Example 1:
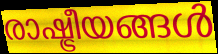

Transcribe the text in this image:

രാഷ്ട്രീയങ്ങൾ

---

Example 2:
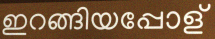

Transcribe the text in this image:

ഇറങ്ങിയപ്പോള്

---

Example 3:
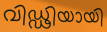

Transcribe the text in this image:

വിഡ്ഢിയായി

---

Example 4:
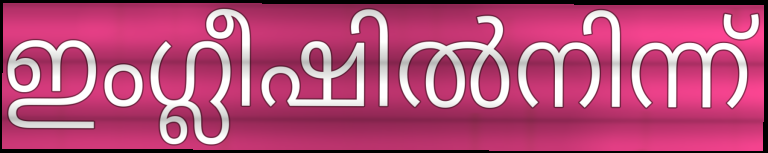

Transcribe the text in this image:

ഇംഗ്ലീഷിൽനിന്ന്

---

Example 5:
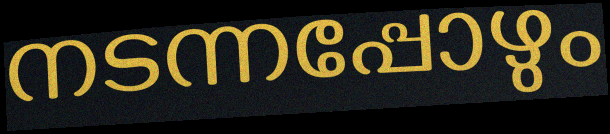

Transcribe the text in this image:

നടന്നപ്പോഴും